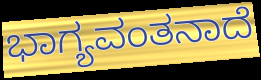
ಭಾಗ್ಯವಂತನಾದೆ